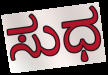
ಸುಧ